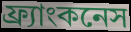
ফ্র্যাংকনেস